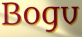
Bogu